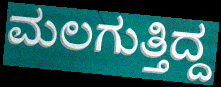
ಮಲಗುತ್ತಿದ್ದ